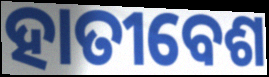
ହାତୀବେଶ